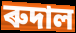
ৰুদাল